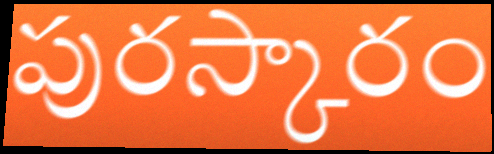
పురస్కారం